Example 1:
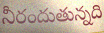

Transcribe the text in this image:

నీరందుతున్నది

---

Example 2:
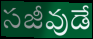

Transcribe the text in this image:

సజీవుడే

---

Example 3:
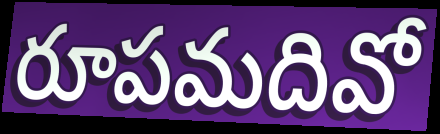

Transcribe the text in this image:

రూపమదివో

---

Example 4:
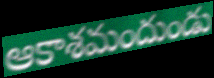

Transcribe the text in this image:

ఆకాశమందుండు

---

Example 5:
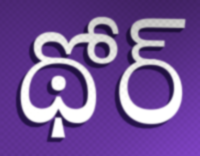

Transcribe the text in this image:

థోర్